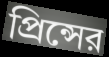
প্রিন্সের